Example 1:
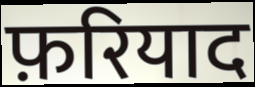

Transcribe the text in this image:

फ़रियाद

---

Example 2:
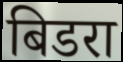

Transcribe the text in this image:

बिडरा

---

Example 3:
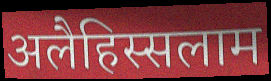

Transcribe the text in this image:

अलैहिस्सलाम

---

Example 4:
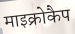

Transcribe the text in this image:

माइक्रोकैप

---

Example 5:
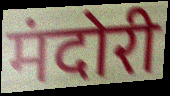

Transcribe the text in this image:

मंदोरी